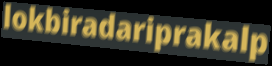
lokbiradariprakalp